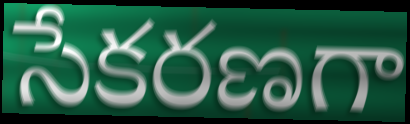
సేకరణగా